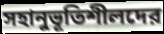
সহানুভূতিশীলদের